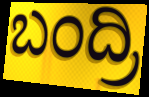
ಬಂದ್ರಿ